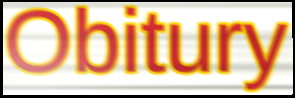
Obitury